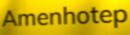
Amenhotep